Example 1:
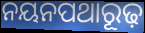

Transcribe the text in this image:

ନୟନପଥାରୂଢ଼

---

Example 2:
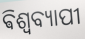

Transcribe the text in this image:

ଵିଶ୍ୱବ୍ୟାପୀ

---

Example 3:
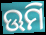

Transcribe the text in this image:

ଊମି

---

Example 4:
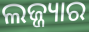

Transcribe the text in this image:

ଲଜ୍ଜ୍ୟାର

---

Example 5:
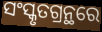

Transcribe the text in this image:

ସଂସ୍କୃତଗ୍ରନ୍ଥରେ